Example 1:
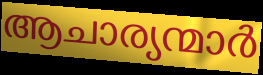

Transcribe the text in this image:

ആചാര്യന്മാർ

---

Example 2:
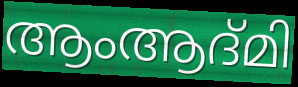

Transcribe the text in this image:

ആംആദ്മി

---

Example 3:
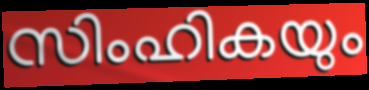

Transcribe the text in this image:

സിംഹികയും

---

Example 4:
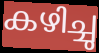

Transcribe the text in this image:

കഴിച്ചു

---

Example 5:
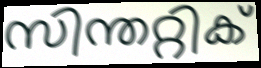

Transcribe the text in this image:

സിന്തറ്റിക്